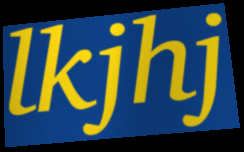
lkjhj